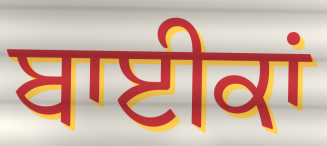
ਬਾਈਕਾਂ